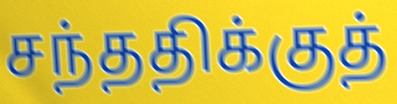
சந்ததிக்குத்